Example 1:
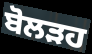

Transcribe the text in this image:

ਬੋਲੜਹ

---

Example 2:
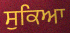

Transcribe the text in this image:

ਸੁਕਿਆ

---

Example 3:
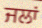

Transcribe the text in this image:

ਜਲਾਂ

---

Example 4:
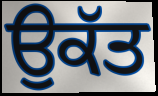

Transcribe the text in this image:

ਉਕੱਤ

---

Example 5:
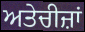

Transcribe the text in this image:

ਅਤੇਚੀਜ਼ਾਂ